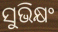
ସୁଭିକ୍ଷଂ